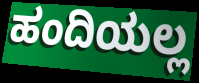
ಹಂದಿಯಲ್ಲ